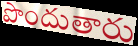
పొందుతారు